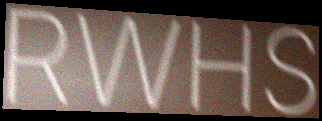
RWHS